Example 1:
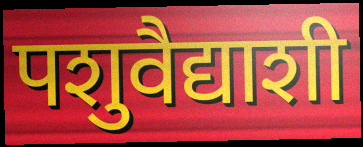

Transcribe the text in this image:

पशुवैद्याशी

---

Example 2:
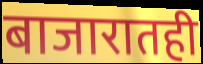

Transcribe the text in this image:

बाजारातही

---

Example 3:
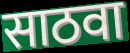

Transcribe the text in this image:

साठवा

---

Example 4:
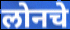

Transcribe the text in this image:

लोनचे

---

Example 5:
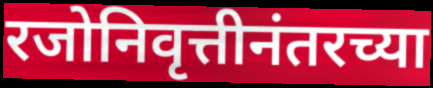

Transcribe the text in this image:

रजोनिवृत्तीनंतरच्या